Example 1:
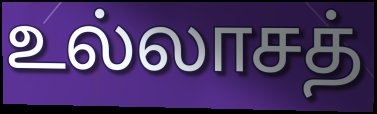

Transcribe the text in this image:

உல்லாசத்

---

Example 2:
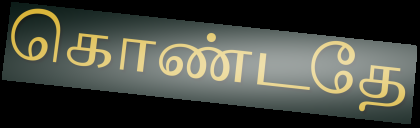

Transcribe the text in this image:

கொண்டதே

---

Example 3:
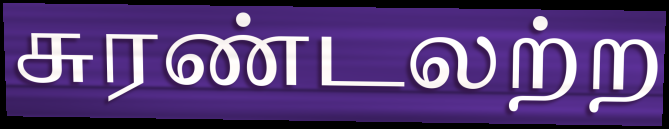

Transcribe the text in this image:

சுரண்டலற்ற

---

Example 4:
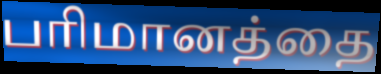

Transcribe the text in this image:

பரிமானத்தை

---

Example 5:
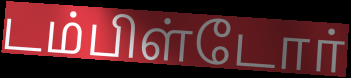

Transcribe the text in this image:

டம்பிள்டோர்